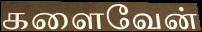
களைவேன்